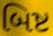
બિષ્ટ